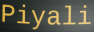
Piyali